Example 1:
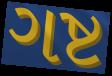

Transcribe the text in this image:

ગષ્ટ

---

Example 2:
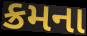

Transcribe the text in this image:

ક્રમના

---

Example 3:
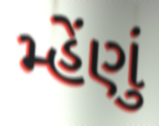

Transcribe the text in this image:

મ્હેંણું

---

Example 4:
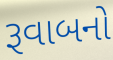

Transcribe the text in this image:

રૂવાબનો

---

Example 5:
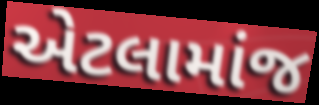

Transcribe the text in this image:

એટલામાંજ